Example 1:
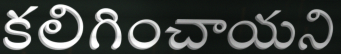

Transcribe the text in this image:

కలిగించాయని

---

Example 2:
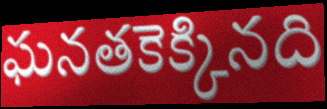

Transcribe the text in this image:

ఘనతకెక్కినది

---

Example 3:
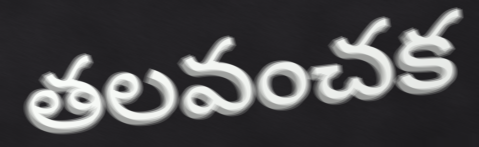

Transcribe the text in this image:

తలవంచక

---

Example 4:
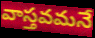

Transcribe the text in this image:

వాస్తవమనే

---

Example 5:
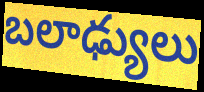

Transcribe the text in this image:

బలాఢ్యులు